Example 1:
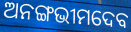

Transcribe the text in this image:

ଅନଙ୍ଗଭୀମଦେବ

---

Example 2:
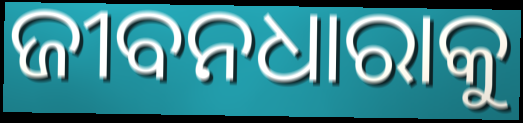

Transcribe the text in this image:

ଜୀବନଧାରାକୁ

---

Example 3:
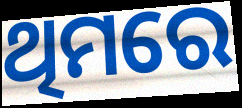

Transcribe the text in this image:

ଥିମରେ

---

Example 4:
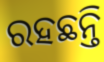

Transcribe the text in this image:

ରହଛନ୍ତି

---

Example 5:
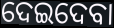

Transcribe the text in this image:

ଦେଇଦେବା